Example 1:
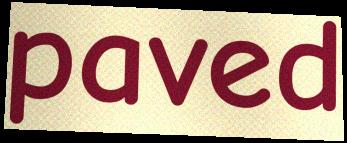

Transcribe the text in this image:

paved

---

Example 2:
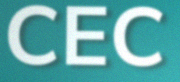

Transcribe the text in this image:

CEC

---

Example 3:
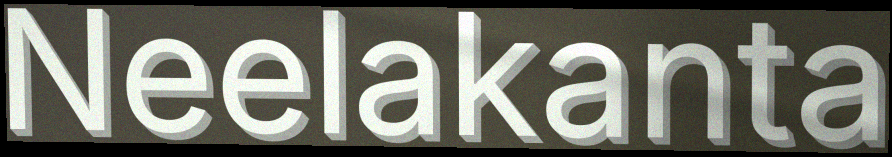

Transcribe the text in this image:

Neelakanta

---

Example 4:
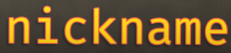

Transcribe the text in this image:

nickname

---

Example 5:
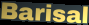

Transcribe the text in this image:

Barisal